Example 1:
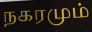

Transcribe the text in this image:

நகரமும்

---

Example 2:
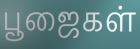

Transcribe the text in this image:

பூஜைகள்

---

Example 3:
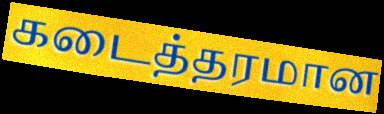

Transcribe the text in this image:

கடைத்தரமான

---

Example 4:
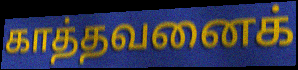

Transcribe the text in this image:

காத்தவனைக்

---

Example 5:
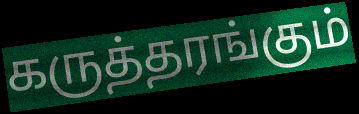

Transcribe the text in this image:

கருத்தரங்கும்